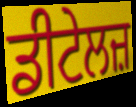
ਡੀਟੇਲਜ਼